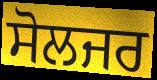
ਸੋਲਜਰ